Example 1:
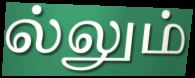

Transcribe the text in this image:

ல்லும்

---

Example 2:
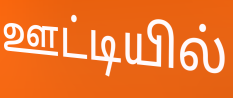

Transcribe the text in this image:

ஊட்டியில்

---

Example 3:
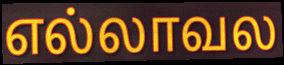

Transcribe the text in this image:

எல்லாவல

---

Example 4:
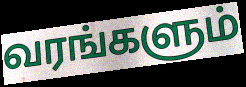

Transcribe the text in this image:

வரங்களும்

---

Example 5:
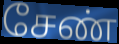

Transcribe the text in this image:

சேண்